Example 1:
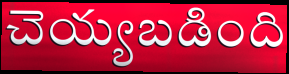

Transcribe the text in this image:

చెయ్యబడింది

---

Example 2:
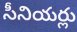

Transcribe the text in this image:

సీనియర్లు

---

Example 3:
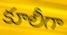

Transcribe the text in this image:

కూలీగా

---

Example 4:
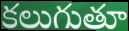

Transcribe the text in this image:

కలుగుతూ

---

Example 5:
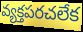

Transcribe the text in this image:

వ్యక్తపరచలేక